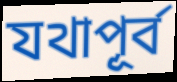
যথাপূর্ব